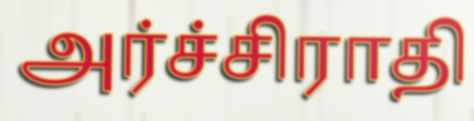
அர்ச்சிராதி